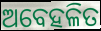
ଅବେହଳିତ